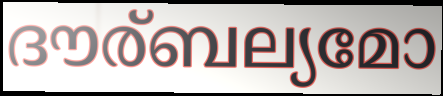
ദൗര്ബല്യമോ